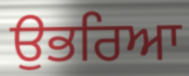
ਉਭਰਿਆ